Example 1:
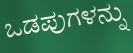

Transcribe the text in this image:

ಒಡಪುಗಳನ್ನು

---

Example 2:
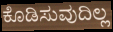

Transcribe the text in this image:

ಕೊಡಿಸುವುದಿಲ್ಲ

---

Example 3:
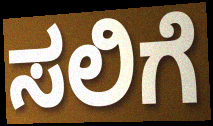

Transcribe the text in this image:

ಸಲಿಗೆ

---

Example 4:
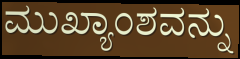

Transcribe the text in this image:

ಮುಖ್ಯಾಂಶವನ್ನು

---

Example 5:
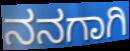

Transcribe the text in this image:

ನನಗಾಗಿ